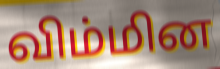
விம்மின